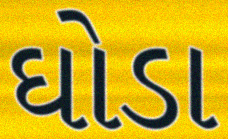
ઘોડા